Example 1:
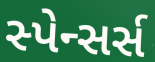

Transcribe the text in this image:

સ્પેન્સર્સ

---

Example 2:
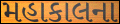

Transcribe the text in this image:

મહાકાલના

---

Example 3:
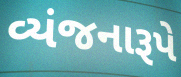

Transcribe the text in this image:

વ્યંજનારૂપે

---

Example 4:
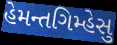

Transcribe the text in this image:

હેમન્તગિમ્હેસુ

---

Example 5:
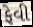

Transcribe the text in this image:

ફેવી